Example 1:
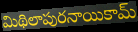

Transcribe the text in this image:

మిథిలాపురనాయికామ్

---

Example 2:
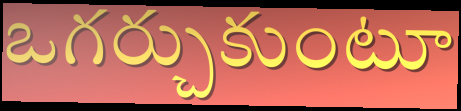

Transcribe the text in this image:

ఒగర్చుకుంటూ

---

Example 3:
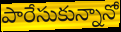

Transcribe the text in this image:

పారేసుకున్నానో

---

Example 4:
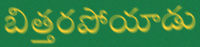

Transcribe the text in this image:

బిత్తరపోయాడు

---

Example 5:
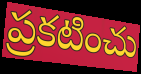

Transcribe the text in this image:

ప్రకటించు